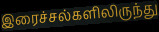
இரைச்சல்களிலிருந்து